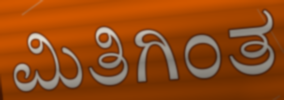
ಮಿತಿಗಿಂತ